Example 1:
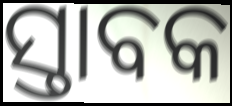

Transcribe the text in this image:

ସ୍ତାବକ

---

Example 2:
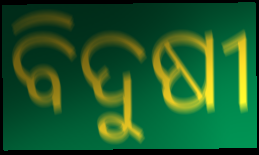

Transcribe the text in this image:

ବିଦୁଷୀ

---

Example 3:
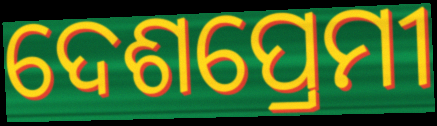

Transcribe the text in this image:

ଦେଶପ୍ରେମୀ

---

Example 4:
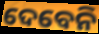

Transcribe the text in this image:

ଦେବେନି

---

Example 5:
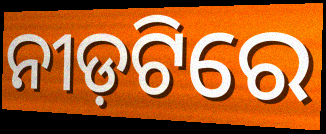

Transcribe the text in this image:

ନୀଡ଼ଟିରେ